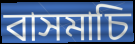
বাসমাচি